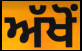
ਅੱਖੋਂ